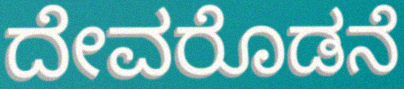
ದೇವರೊಡನೆ